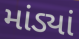
માંડ્યાં